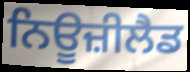
ਨਿਊਜ਼ੀਲੈਡ